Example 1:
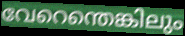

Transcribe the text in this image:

വേറെന്തെങ്കിലും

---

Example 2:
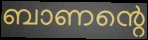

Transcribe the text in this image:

ബാണന്റെ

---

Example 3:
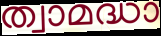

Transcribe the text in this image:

ത്വാമദ്ധാ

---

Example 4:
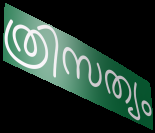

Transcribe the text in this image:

ത്രിസത്യം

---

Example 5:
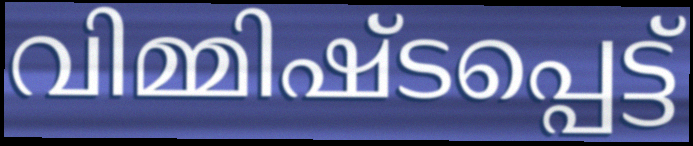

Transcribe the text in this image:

വിമ്മിഷ്ടപ്പെട്ട്